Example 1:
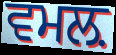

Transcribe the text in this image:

ਵਮਲ਼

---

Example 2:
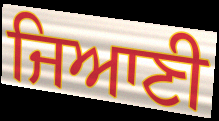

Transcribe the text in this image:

ਜਿਆਣੀ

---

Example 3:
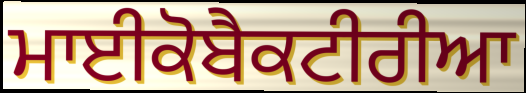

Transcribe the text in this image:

ਮਾਈਕੋਬੈਕਟੀਰੀਆ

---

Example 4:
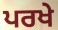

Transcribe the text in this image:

ਪਰਖੇ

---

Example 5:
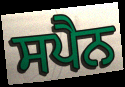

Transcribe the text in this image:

ਸਪੈਨ